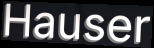
Hauser